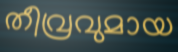
തീവ്രവുമായ